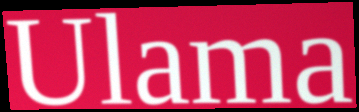
Ulama